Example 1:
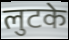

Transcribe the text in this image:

लुटके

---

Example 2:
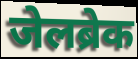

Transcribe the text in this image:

जेलब्रेक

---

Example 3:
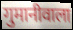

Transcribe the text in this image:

गुमानीवाला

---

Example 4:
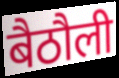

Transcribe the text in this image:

बैठौली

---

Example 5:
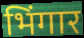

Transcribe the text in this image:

भिंगार